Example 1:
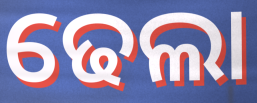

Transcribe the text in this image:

ଢେଲା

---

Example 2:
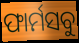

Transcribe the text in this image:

ଫାର୍ମସବୁ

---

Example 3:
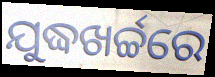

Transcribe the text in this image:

ଯୁଦ୍ଧଖର୍ଚ୍ଚରେ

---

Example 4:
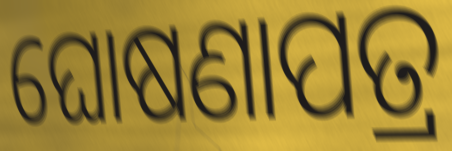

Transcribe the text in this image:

ଘୋଷଣାପତ୍ର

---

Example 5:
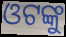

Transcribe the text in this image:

ଓଟଙ୍କୁ